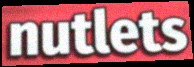
nutlets